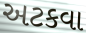
અટકવા